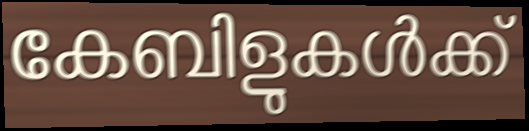
കേബിളുകൾക്ക്